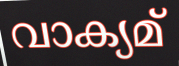
വാക്യമ്